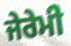
ਜੇਰੇਮੀ